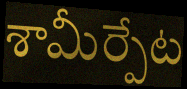
శామీర్పేట